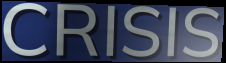
CRISIS